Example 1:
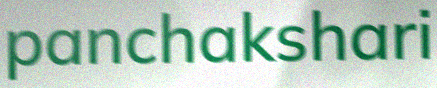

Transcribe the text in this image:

panchakshari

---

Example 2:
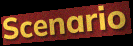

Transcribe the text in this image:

Scenario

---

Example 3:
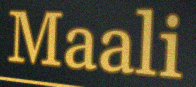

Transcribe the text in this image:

Maali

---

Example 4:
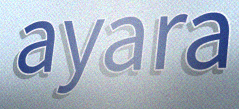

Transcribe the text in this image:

ayara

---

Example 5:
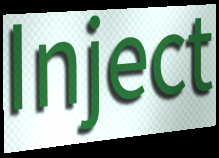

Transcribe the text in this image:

Inject